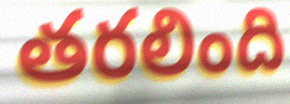
తరలింది